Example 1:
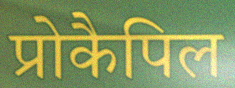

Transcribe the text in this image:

प्रोकैपिल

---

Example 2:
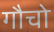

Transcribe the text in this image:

गौचो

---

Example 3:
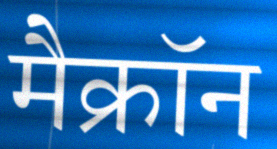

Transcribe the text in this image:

मैक्रॉन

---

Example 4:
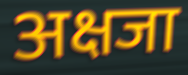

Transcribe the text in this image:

अक्षजा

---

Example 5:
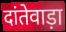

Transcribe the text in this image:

दांतेवाड़ा